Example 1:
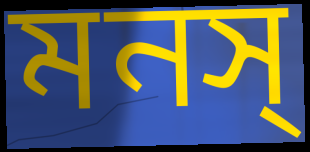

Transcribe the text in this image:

মনস্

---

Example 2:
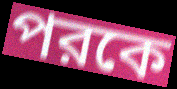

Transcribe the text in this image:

পরকে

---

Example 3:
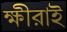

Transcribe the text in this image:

ক্ষীরাই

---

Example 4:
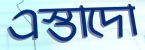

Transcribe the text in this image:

এস্তাদো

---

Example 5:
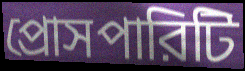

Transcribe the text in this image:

প্রোসপারিটি